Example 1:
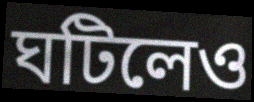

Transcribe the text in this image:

ঘটিলেও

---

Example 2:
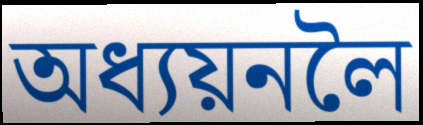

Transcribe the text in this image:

অধ্যয়নলৈ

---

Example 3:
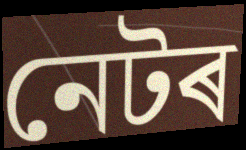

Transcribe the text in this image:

নেটৰ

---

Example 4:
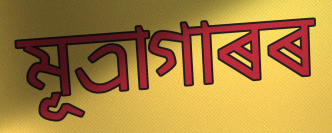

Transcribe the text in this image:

মূত্ৰাগাৰৰ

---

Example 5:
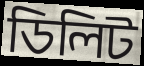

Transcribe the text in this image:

ডিলিট